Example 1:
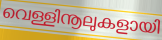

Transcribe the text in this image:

വെള്ളിനൂലുകളായി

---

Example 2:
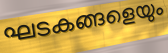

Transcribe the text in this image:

ഘടകങ്ങളെയും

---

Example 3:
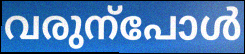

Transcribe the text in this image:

വരുന്പോൾ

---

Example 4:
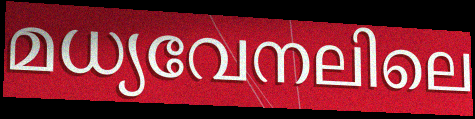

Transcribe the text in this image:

മധ്യവേനലിലെ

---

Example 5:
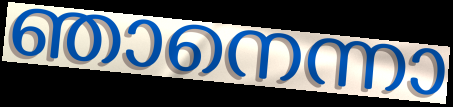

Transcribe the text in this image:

ഞാനെന്നാ